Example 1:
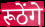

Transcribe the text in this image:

रूठेंगे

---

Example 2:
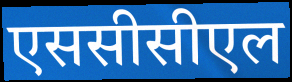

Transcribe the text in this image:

एससीसीएल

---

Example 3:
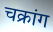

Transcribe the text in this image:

चक्रांग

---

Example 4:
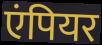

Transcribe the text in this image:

एंपियर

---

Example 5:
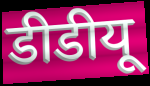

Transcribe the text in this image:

डीडीयू